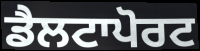
ਡੈਲਟਾਪੋਰਟ